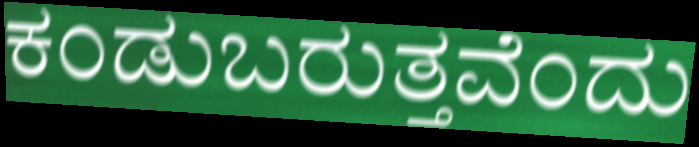
ಕಂಡುಬರುತ್ತವೆಂದು